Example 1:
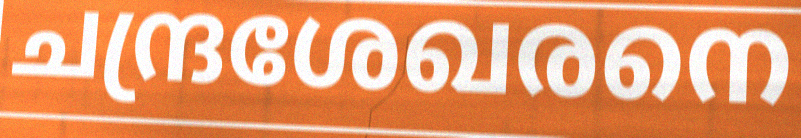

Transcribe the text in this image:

ചന്ദ്രശേഖരനെ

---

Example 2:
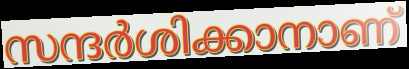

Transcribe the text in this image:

സന്ദർശിക്കാനാണ്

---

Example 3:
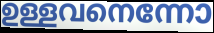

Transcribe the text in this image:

ഉള്ളവനെന്നോ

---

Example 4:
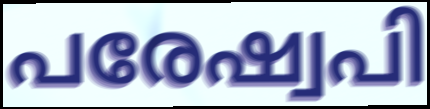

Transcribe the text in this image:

പരേഷ്വപി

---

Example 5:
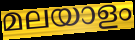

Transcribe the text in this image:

മലയാളം